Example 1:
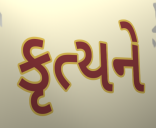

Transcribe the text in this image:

કૃત્યને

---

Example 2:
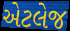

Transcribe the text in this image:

એટલેજ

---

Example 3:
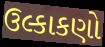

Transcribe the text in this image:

ઉલ્કાકણો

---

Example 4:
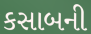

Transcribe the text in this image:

કસાબની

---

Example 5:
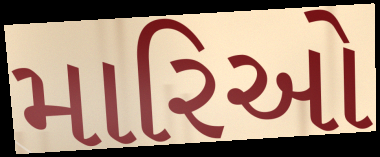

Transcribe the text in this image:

મારિઓ